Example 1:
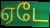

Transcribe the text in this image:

ஏடே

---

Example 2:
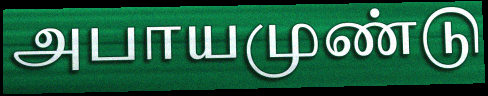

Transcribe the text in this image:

அபாயமுண்டு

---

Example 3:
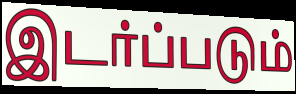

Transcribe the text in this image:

இடர்ப்படும்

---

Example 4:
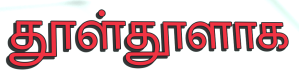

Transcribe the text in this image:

தூள்தூளாக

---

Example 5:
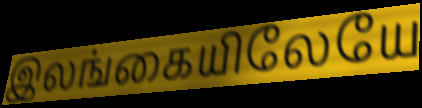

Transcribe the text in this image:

இலங்கையிலேயே